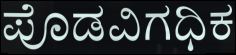
ಪೊಡವಿಗಧಿಕ